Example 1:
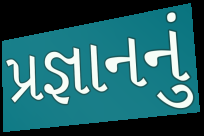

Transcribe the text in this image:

પ્રજ્ઞાનનું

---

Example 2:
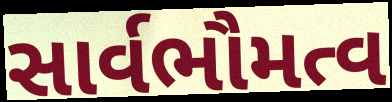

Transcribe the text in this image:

સાર્વભૌમત્વ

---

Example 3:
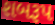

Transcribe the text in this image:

શબરૂપ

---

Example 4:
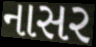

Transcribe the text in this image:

નાસર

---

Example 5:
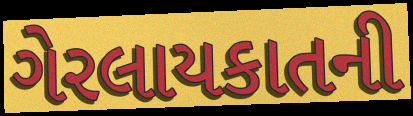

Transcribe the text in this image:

ગેરલાયકાતની